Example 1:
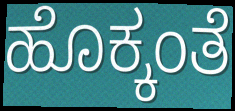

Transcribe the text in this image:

ಹೊಕ್ಕಂತೆ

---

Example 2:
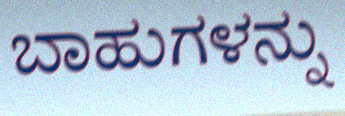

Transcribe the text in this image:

ಬಾಹುಗಳನ್ನು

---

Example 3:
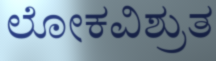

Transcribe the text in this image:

ಲೋಕವಿಶ್ರುತ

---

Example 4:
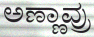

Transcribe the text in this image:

ಅಣ್ಣಾವ್ರು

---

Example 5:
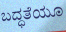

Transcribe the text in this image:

ಬದ್ಧತೆಯೂ